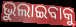
ଭୁଲାଇବାକୁ